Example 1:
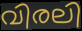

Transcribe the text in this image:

വിരലി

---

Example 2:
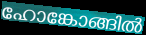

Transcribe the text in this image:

ഹോങ്കോങ്ങിൽ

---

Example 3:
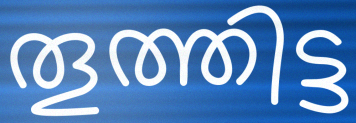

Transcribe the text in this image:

തൂത്തിട്ട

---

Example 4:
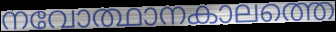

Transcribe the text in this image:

നവോത്ഥാനകാലത്തെ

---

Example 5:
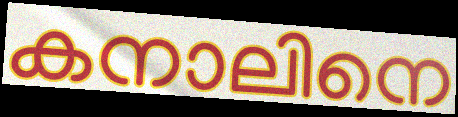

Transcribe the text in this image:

കനാലിനെ